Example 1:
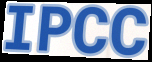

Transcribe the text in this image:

IPCC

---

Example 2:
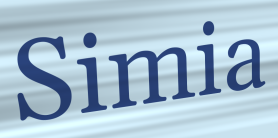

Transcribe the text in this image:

Simia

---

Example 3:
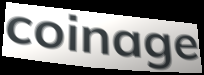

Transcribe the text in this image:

coinage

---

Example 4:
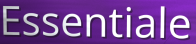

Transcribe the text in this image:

Essentiale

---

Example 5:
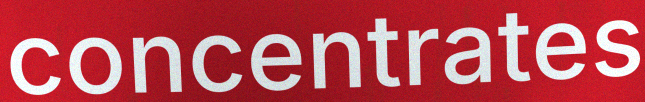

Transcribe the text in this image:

concentrates